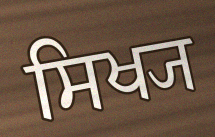
ਸਿਖ੍ਯ